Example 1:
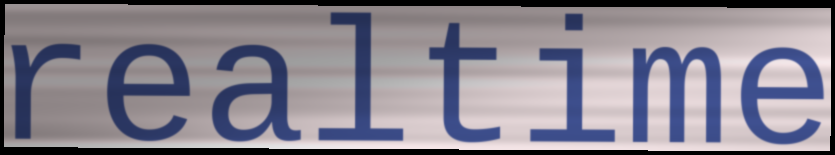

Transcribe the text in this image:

realtime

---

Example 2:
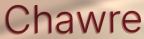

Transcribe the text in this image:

Chawre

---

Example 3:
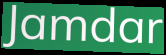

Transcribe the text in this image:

Jamdar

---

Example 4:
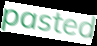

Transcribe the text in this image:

pasted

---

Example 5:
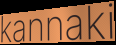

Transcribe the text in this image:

kannaki